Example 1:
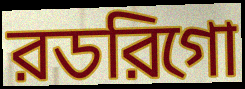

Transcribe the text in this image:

রডরিগো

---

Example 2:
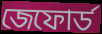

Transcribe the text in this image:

জেফোর্ড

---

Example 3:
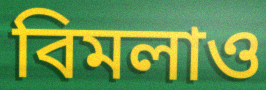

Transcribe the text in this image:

বিমলাও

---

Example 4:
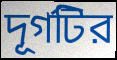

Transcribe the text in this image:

দূর্গটির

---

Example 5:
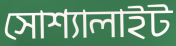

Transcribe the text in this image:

সোশ্যালাইট